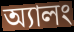
অ্যালং